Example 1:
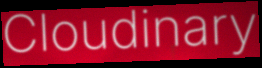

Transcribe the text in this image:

Cloudinary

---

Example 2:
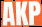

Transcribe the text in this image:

AKP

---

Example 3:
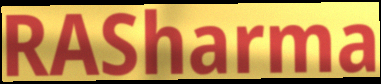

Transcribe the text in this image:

RASharma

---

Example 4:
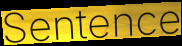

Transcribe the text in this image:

Sentence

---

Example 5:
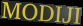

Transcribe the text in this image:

MODIJI